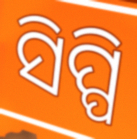
ସିପ୍ପି